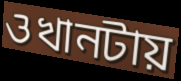
ওখানটায়